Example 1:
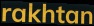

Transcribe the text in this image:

rakhtan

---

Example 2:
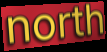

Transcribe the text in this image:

north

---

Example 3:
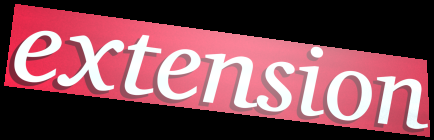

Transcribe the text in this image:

extension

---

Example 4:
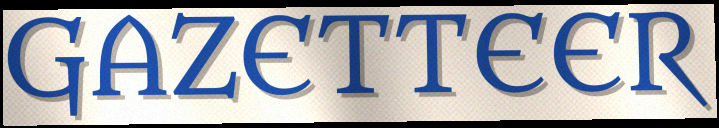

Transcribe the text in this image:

GAZETTEER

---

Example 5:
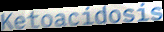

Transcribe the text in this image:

Ketoacidosis